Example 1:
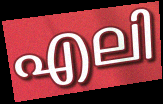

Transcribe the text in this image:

എലി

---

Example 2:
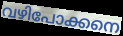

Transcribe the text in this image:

വഴിപോക്കനെ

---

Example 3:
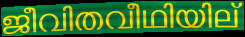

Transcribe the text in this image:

ജീവിതവീഥിയില്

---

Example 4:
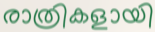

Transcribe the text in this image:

രാത്രികളായി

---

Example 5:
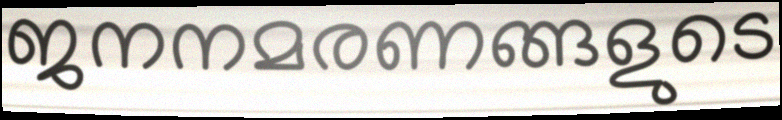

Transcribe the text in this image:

ജനനമരണങ്ങളുടെ